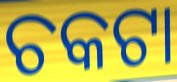
ଚକଟା